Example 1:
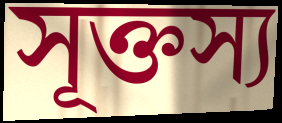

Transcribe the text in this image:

সূক্তস্য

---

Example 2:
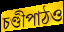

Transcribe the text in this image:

চণ্ডীপাঠও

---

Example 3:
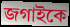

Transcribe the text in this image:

জগাইকে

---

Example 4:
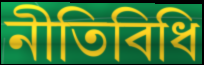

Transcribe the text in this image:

নীতিবিধি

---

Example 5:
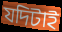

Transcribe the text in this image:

যদিটাই